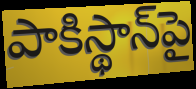
పాకిస్థాన్‌పై